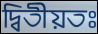
দ্বিতীয়তঃ